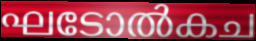
ഘടോൽകച